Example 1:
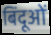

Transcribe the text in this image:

बिंदूओं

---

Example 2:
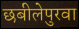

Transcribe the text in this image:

छबीलेपुरवा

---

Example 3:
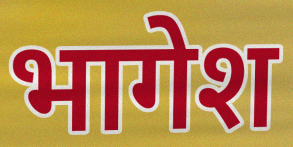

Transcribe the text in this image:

भागेश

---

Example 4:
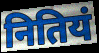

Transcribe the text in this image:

नितियं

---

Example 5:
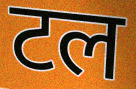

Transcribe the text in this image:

टल